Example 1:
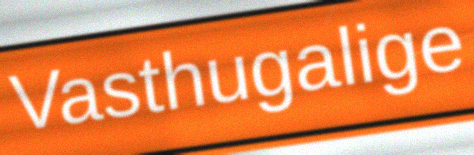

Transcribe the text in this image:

Vasthugalige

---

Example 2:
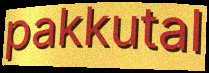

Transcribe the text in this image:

pakkutal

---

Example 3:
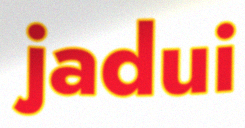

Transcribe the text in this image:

jadui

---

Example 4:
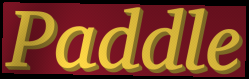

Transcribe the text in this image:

Paddle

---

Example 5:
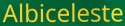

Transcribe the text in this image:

Albiceleste